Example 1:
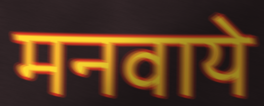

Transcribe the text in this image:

मनवाये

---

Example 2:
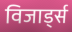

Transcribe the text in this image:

विजार्ड्स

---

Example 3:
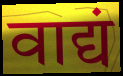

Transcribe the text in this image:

वाद्यं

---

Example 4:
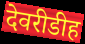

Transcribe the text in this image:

देवरीडीह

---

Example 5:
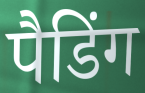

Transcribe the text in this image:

पैडिंग